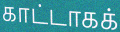
காட்டாகக்